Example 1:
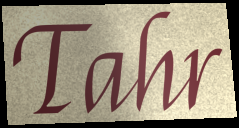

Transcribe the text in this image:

Tahr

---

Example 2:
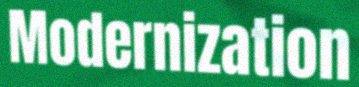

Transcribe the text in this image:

Modernization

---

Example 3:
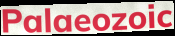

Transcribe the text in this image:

Palaeozoic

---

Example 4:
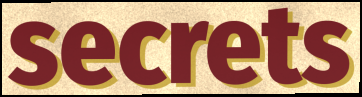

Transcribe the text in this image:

secrets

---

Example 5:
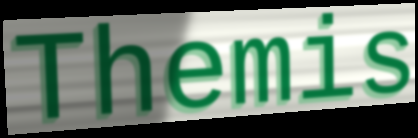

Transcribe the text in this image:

Themis